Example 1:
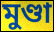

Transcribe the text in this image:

মুণ্ডা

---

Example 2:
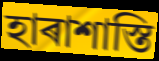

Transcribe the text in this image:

হাৰাশাস্তি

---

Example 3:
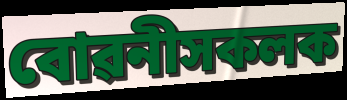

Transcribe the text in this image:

বোৱনীসকলক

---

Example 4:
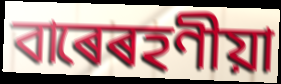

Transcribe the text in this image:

বাৰেৰহণীয়া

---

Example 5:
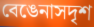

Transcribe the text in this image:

বেঙেনাসদৃশ